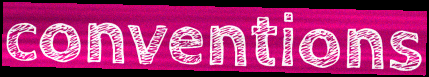
conventions